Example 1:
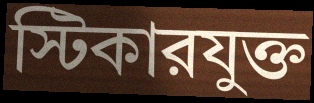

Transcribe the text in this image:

স্টিকারযুক্ত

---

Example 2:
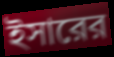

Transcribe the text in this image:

ইসারের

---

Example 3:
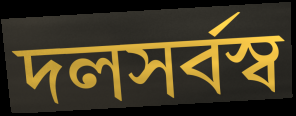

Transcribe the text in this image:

দলসর্বস্ব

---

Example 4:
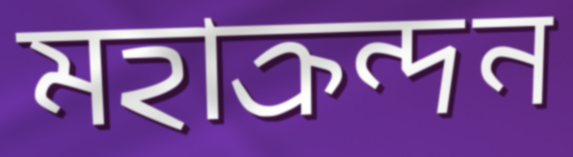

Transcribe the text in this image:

মহাক্রন্দন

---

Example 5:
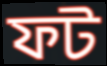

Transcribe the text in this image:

ফট